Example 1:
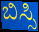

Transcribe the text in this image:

ಬಿಸ್ಸಿ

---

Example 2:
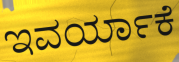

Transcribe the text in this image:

ಇವರ್ಯಾಕೆ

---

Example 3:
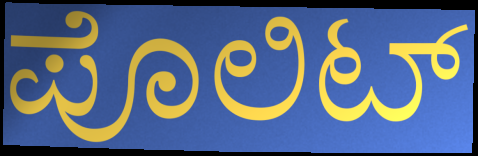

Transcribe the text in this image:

ಪೊಲಿಟ್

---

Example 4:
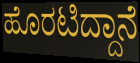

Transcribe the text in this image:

ಹೊರಟಿದ್ದಾನೆ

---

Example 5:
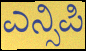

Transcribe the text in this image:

ಎನ್ಸಿಪಿ